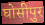
घोसीपुर